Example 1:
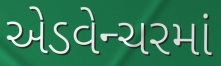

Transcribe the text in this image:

એડવેન્ચરમાં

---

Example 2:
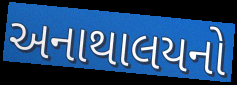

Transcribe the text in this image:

અનાથાલયનો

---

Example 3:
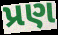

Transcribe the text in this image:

પ્રણ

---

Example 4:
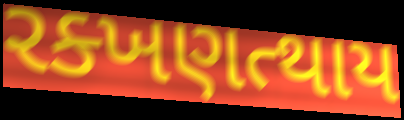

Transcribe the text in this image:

રક્ખણત્થાય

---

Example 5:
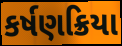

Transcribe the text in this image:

કર્ષણક્રિયા